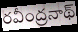
రవీంద్రనాథ్